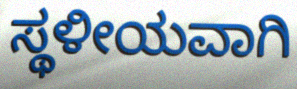
ಸ್ಥಳೀಯವಾಗಿ